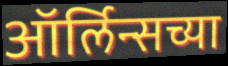
ऑर्लिन्सच्या